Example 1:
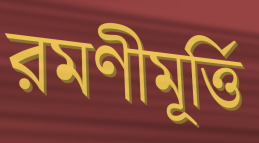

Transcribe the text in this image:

রমণীমূর্ত্তি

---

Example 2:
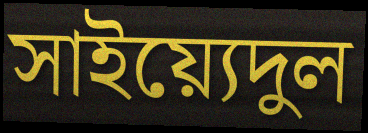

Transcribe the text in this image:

সাইয়্যেদুল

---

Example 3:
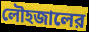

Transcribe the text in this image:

লৌহজালের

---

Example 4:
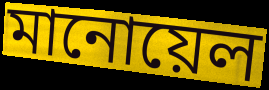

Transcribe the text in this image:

মানোয়েল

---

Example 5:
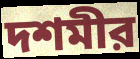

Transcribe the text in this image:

দশমীর